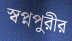
স্বপ্নপুরীর